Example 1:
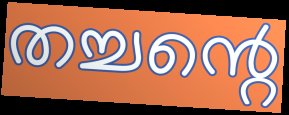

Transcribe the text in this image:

തച്ചന്റെ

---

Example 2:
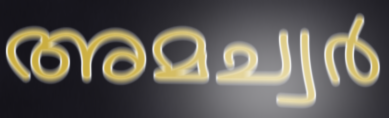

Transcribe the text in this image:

അമച്വർ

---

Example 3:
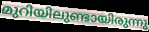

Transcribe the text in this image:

മുറിയിലുണ്ടായിരുന്നു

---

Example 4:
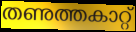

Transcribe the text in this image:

തണുത്തകാറ്റ്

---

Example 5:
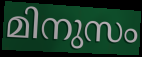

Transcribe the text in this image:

മിനുസം